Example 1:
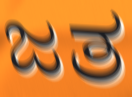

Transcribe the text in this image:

ಜತ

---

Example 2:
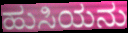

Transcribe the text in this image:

ಹುಸಿಯನು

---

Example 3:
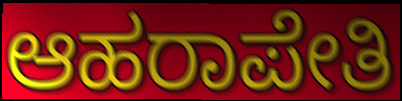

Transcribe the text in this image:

ಆಹರಾಪೇತಿ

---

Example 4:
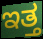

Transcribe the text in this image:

ಇತ್ತ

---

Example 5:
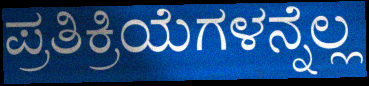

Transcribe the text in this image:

ಪ್ರತಿಕ್ರಿಯೆಗಳನ್ನೆಲ್ಲ